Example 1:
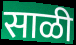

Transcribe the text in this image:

साळी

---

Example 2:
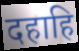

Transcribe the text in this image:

दहाहि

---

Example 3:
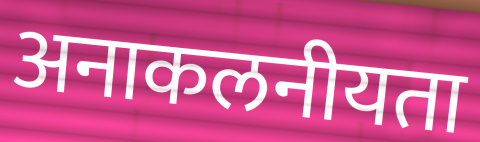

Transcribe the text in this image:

अनाकलनीयता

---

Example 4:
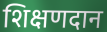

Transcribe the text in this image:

शिक्षणदान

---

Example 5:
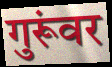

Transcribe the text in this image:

गुरूंवर